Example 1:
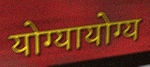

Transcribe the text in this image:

योग्यायोग्य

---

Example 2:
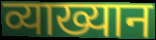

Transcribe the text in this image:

व्याख्यान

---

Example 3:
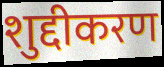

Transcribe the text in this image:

शुद्दीकरण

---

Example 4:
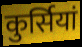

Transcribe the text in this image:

कुर्सियां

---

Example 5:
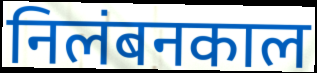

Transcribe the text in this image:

निलंबनकाल